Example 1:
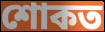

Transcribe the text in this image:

শোকত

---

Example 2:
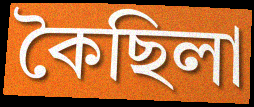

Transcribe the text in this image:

কৈছিলা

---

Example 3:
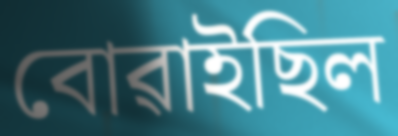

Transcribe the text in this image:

বোৱাইছিল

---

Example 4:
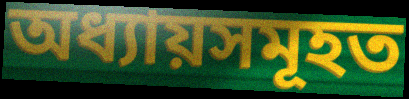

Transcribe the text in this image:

অধ্যায়সমূহত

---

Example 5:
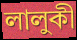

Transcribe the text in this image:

লালুকী